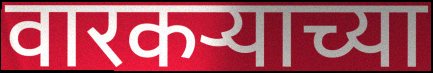
वारकऱ्याच्या